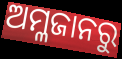
ଅମ୍ଳଜାନରୁ